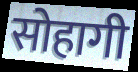
सोहागी